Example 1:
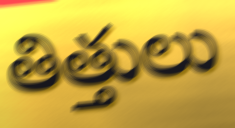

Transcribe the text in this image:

తిత్తులు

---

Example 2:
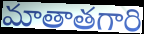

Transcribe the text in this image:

మాతాతగారి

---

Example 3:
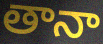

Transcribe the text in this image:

తానా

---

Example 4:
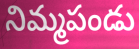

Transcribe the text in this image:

నిమ్మపండు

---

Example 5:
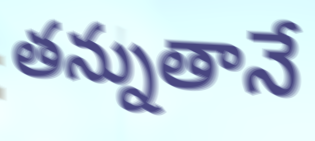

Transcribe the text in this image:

తన్నుతానే